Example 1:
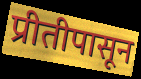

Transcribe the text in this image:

प्रीतीपासून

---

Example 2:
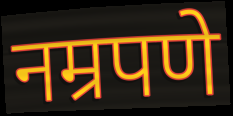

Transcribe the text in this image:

नम्रपणे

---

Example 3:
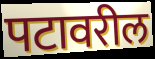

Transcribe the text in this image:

पटावरील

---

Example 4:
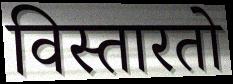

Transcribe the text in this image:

विस्तारतो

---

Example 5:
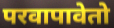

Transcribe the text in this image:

परवापावेतो